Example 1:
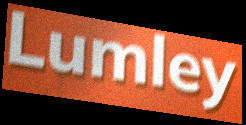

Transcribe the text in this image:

Lumley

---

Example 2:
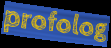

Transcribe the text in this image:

profolog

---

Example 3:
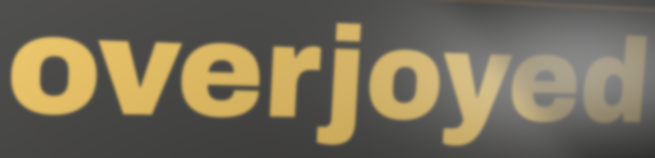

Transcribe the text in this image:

overjoyed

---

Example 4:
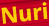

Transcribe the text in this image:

Nuri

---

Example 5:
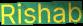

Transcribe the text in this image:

Rishab